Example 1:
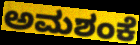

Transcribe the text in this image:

ಅಮಶಂಕೆ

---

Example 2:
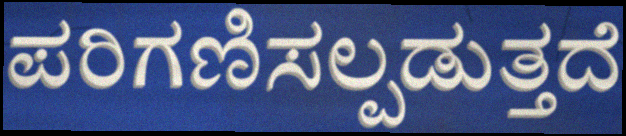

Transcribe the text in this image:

ಪರಿಗಣಿಸಲ್ಪಡುತ್ತದೆ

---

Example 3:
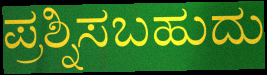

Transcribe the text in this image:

ಪ್ರಶ್ನಿಸಬಹುದು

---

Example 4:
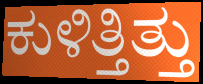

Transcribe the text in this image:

ಕುಳಿತ್ತಿತ್ತು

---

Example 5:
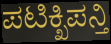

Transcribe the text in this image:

ಪಟಿಕ್ಖಿಪನ್ತಿ